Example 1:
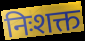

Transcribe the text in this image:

निःशक्त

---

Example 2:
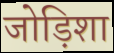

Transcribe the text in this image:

जोड़िशा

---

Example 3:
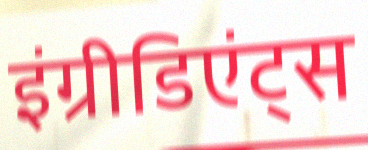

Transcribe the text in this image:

इंग्रीडिएंट्स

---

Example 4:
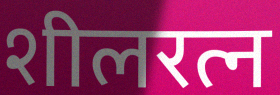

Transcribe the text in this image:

शीलरत्न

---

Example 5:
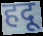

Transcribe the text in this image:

हदू